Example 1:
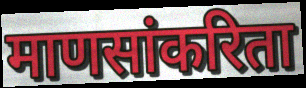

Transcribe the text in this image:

माणसांकरिता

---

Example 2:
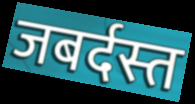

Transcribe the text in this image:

जबर्दस्त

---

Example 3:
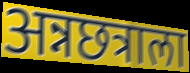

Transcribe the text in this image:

अन्नछत्राला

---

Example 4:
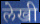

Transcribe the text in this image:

लेखी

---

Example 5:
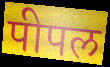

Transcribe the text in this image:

पीपल